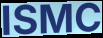
ISMC